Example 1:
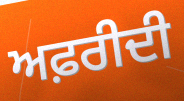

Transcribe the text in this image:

ਅਫ਼ਰੀਦੀ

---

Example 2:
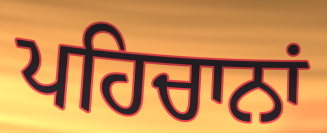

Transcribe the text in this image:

ਪਹਿਚਾਨਾਂ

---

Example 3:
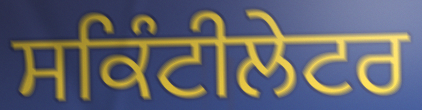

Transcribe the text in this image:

ਸਕਿੰਟੀਲੇਟਰ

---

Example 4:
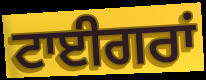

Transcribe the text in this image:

ਟਾਈਗਰਾਂ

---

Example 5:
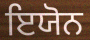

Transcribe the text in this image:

ਇਯੋਨ